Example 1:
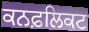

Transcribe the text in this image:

ਕਨਫ਼ਲਿਕਟ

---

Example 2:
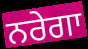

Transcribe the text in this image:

ਨਰੇਗਾ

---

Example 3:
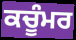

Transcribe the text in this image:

ਕਚੂੰਮਰ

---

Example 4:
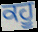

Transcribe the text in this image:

ਕਹੂ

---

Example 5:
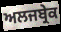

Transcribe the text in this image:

ਅਲਜਬ੍ਰੇਕ